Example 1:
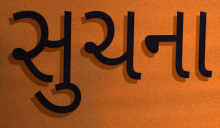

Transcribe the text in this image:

સુચના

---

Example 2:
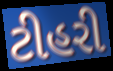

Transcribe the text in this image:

ટીહરી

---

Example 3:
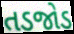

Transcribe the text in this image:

તડજોડ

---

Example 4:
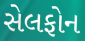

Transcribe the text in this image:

સેલફોન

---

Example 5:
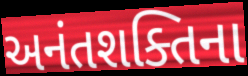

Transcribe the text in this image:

અનંતશક્તિના